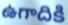
ఉగాదికి